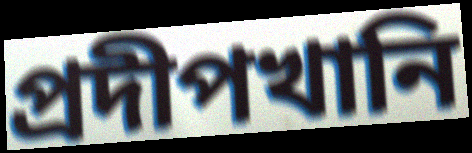
প্রদীপখানি